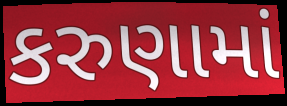
કરુણામાં